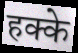
हक्के